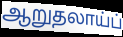
ஆறுதலாய்ப்